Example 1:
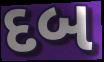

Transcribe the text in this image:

દબ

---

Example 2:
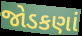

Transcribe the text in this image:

જોડકણાં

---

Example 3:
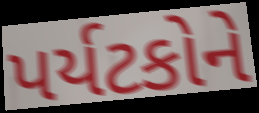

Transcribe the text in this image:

પર્યટકોને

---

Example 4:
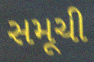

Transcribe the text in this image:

સમૂચી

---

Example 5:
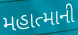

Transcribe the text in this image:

મહાત્માની